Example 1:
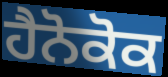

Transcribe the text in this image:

ਹੈਨੋਕੋਕ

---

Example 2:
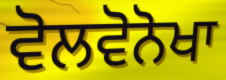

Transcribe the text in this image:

ਵੋਲਵੋਨੋਖਾ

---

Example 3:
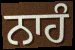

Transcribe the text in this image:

ਨਾਹੰ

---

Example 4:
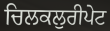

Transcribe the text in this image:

ਚਿਲਕਲੁਰੀਪੇਟ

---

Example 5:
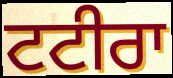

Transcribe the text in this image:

ਟਟੀਰਾ